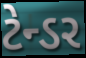
ટેન્ડર